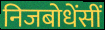
निजबोधेंसीं